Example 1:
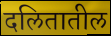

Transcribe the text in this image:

दलितातील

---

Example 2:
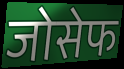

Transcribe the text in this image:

जोसेफ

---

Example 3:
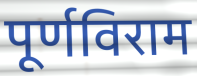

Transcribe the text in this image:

पूर्णविराम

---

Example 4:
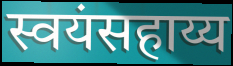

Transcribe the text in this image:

स्वयंसहाय्य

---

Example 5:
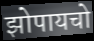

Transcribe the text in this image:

झोपायचो